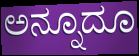
ಅನ್ನೂದೂ